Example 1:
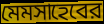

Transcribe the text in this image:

মেমসাহেবের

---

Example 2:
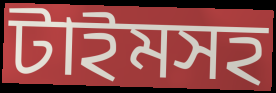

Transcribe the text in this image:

টাইমসহ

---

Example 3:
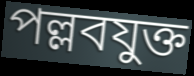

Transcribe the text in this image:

পল্লবযুক্ত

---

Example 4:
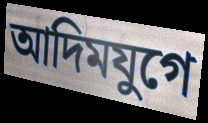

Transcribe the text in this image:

আদিমযুগে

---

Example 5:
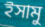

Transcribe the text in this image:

ইসামু